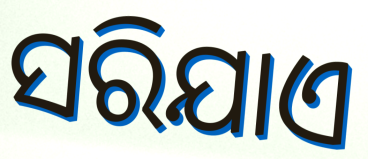
ସରିଯାଏ